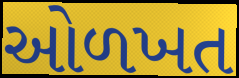
ઓળખત